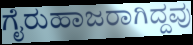
ಗೈರುಹಾಜರಾಗಿದ್ದವು